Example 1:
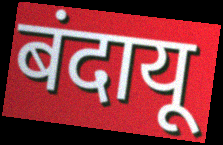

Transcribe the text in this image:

बंदायू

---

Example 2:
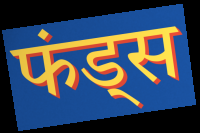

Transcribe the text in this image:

फंड्स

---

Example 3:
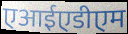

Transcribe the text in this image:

एआईएडीएम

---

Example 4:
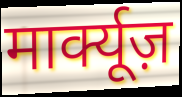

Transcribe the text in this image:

मार्क्यूज़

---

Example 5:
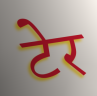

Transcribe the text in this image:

टेर